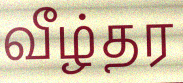
வீழ்தர